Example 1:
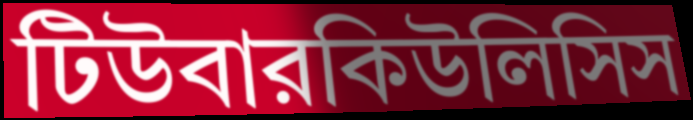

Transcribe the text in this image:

টিউবারকিউলিসিস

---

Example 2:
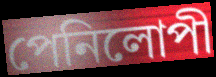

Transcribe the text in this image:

পেনিলোপী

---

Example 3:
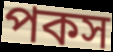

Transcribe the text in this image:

পকস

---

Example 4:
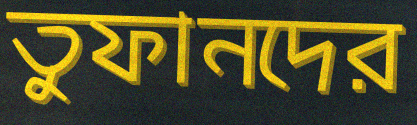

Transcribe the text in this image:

তুফানদের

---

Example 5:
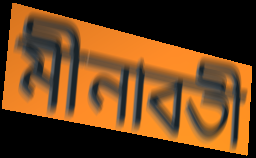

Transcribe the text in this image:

মীনাবতী